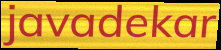
javadekar